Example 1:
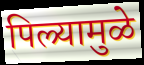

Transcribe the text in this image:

पिल्यामुळे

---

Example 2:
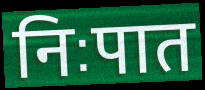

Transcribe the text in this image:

निःपात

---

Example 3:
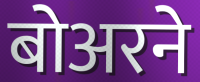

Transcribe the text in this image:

बोअरने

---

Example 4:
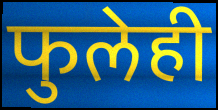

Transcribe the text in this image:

फुलेही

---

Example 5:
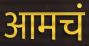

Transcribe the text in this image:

आमचं